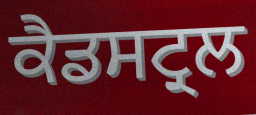
ਕੈਡਸਟ੍ਰਲ